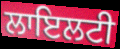
ਲਾਇਲਟੀ